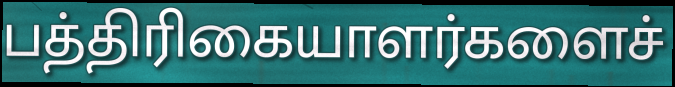
பத்திரிகையாளர்களைச்